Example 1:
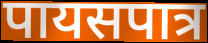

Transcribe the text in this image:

पायसपात्र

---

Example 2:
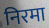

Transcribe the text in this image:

निरमा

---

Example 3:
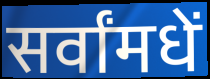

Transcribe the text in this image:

सर्वांमधें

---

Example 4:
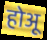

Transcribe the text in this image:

होअू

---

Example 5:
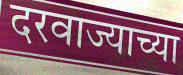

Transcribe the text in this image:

दरवाज्याच्या